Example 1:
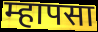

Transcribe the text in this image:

म्हापसा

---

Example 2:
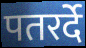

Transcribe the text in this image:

पतरर्दे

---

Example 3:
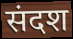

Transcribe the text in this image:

संदश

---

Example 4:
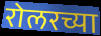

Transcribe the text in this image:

रोलरच्या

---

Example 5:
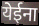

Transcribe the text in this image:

येईना